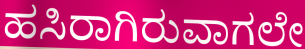
ಹಸಿರಾಗಿರುವಾಗಲೇ